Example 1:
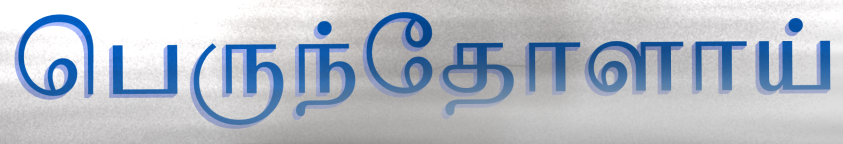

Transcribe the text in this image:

பெருந்தோளாய்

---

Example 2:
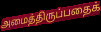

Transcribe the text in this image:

அமைத்திருப்பதைக்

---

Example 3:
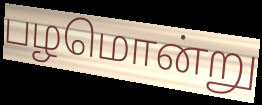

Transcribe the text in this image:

பழமொன்று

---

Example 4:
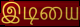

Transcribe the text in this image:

இடியை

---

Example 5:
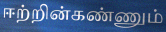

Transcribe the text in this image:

ஈற்றின்கண்ணும்